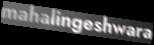
mahalingeshwara